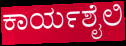
ಕಾರ್ಯಶೈಲಿ